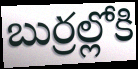
బుర్రల్లోకి